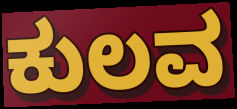
ಕುಲವ